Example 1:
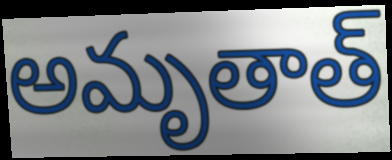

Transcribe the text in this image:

అమృతాత్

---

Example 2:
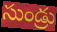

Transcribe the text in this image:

సుండ్రు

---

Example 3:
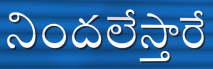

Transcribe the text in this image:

నిందలేస్తారే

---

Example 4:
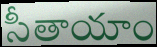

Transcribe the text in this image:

సీతాయాం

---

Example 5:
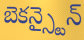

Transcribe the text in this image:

బెకన్స్టైన్